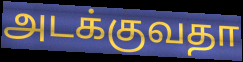
அடக்குவதா